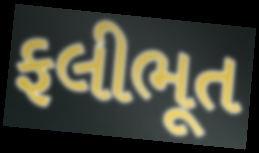
ફલીભૂત